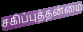
சகிப்புத்தன்மை